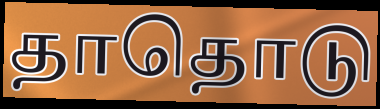
தாதொடு